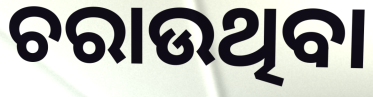
ଚରାଉଥିବା